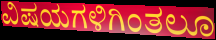
ವಿಷಯಗಳಿಗಿಂತಲೂ